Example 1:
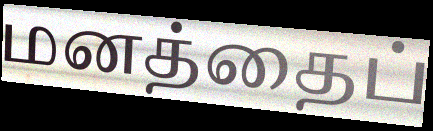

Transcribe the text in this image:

மனத்தைப்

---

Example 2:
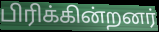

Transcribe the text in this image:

பிரிக்கின்றனர்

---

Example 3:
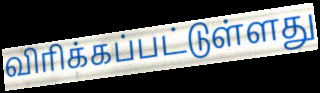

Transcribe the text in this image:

விரிக்கப்பட்டுள்ளது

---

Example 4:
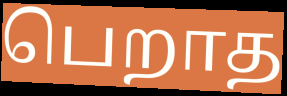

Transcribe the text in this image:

பெறாத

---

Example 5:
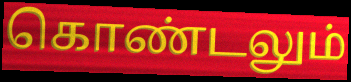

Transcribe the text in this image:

கொண்டலும்